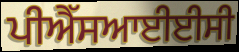
ਪੀਐੱਸਆਈਈਸੀ